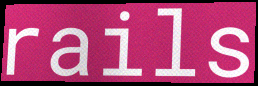
rails